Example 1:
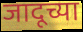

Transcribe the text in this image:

जादूच्या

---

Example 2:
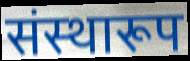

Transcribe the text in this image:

संस्थारूप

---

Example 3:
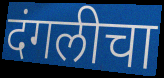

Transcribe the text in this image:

दंगलीचा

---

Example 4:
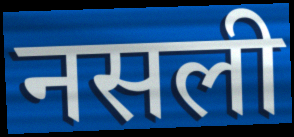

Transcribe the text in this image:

नसली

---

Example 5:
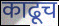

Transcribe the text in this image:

काढूच